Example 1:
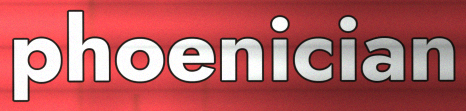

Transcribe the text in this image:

phoenician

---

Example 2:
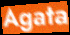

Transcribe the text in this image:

Agata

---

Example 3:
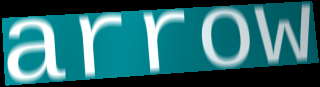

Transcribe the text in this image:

arrow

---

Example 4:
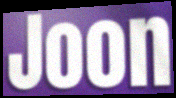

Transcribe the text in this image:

Joon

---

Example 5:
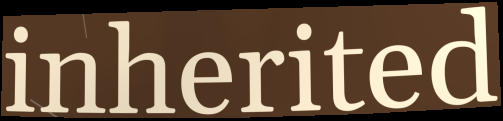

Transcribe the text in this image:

inherited